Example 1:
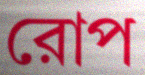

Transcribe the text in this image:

রোপ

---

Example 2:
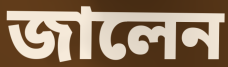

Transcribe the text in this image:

জালেন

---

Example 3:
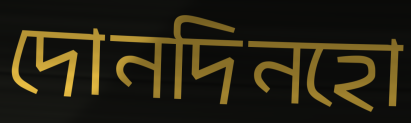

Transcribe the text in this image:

দোনদিনহো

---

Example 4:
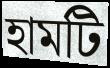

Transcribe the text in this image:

হামটি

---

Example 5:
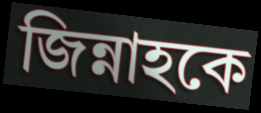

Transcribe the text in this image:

জিন্নাহকে